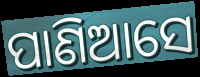
ପାଣିଆସେ